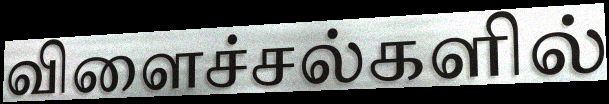
விளைச்சல்களில்